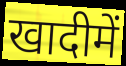
खादीमें